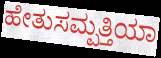
ಹೇತುಸಮ್ಪತ್ತಿಯಾ